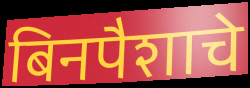
बिनपैशाचे